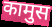
कामुस